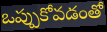
ఒప్పుకోవడంతో